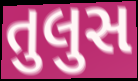
તુલુસ